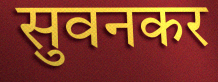
सुवनकर